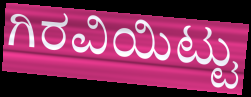
ಗಿರವಿಯಿಟ್ಟು